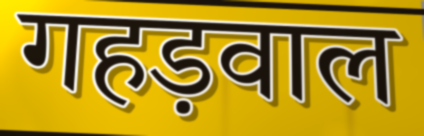
गहड़वाल